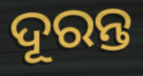
ଦୂରନ୍ତ